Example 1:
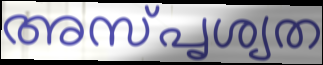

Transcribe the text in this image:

അസ്പൃശ്യത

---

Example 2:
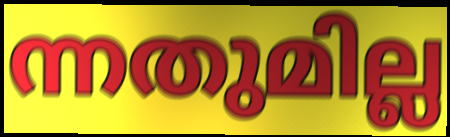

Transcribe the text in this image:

ന്നതുമില്ല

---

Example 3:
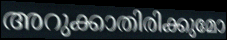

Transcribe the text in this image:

അറുക്കാതിരിക്കുമോ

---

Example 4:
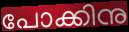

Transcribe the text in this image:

പോക്കിനു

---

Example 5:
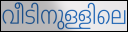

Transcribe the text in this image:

വീടിനുള്ളിലെ